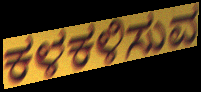
ಕಳಕಳಿಸುವ